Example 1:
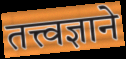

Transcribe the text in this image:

तत्त्वज्ञाने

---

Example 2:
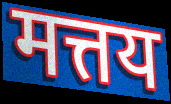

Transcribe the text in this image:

मत्तय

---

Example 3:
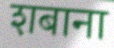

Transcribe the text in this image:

शबाना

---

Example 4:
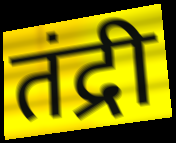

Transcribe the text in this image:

तंद्री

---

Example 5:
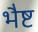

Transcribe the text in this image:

भैष्ट